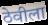
ठेवीला